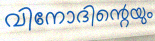
വിനോദിന്റെയും